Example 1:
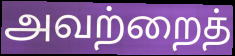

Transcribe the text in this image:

அவற்றைத்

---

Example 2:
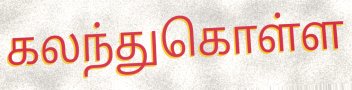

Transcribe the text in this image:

கலந்துகொள்ள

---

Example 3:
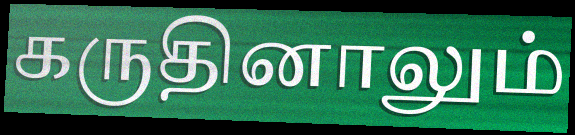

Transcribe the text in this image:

கருதினாலும்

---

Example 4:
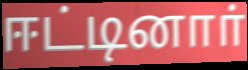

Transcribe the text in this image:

ஈட்டினார்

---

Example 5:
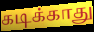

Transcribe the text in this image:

கடிக்காது